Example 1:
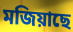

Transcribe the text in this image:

মজিয়াছে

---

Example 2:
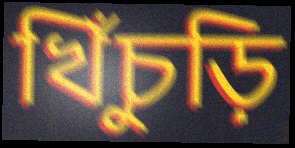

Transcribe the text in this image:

খিঁচুড়ি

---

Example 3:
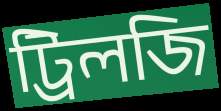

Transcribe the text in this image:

ট্রিলজি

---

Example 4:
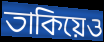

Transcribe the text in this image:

তাকিয়েও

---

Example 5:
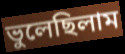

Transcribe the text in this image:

ভুলেছিলাম